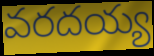
వరదయ్య